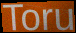
Toru